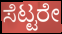
ಸೆಟ್ಟರೇ